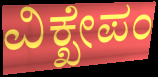
ವಿಕ್ಖೇಪಂ